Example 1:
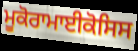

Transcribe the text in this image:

ਮੂਕੋਰਾਮਾਈਕੋਸਿਸ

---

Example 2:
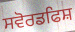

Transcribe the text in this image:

ਸਵੋਰਡਫਿਸ਼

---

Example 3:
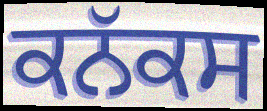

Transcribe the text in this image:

ਕਨੱਕਸ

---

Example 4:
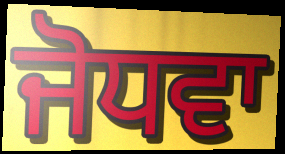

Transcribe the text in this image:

ਜੋਧਵਾ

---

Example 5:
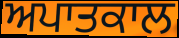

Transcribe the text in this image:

ਅਪਾਤਕਾਲ